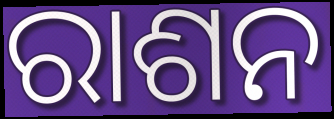
ରାଶନ